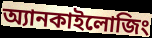
অ্যানকাইলোজিং